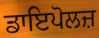
ਡਾਇਪੋਲਜ਼